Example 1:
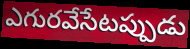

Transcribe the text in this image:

ఎగురవేసేటప్పుడు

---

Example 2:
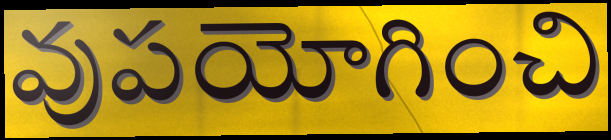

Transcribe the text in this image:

వుపయోగించి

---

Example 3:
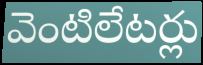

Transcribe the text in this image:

వెంటిలేటర్లు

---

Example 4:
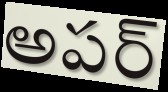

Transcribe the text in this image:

అపర్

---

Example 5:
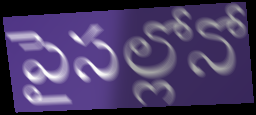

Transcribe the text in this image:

పైసల్లోనో